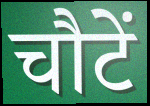
चौटें